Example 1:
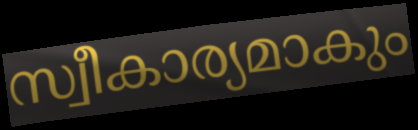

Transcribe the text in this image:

സ്വീകാര്യമാകും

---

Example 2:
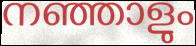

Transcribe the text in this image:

നഞ്ഞാളും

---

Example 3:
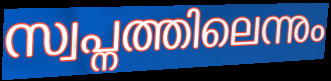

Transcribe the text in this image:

സ്വപ്നത്തിലെന്നും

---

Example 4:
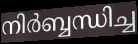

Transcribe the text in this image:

നിർബ്ബന്ധിച്ച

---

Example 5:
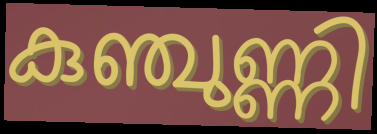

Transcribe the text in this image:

കുഞ്ചുണ്ണി